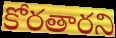
కోరతారని